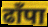
ढाँपा